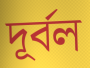
দূর্বল